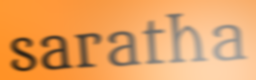
saratha